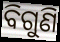
ବିଗୁଣି